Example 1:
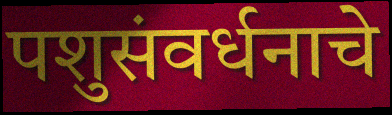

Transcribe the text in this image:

पशुसंवर्धनाचे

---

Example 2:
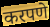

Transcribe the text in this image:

करपणे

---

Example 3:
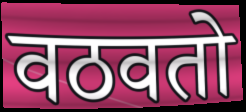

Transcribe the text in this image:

वठवतो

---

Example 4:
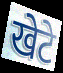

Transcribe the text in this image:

खेटे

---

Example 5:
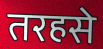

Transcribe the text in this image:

तरहसे